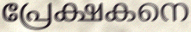
പ്രേക്ഷകനെ